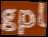
gpl